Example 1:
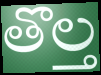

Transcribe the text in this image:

తొల్త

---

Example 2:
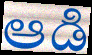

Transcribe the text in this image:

ఆడి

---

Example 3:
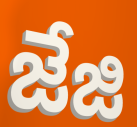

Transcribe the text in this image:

జేజి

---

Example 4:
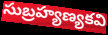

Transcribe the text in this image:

సుబ్రహ్యణ్యకవి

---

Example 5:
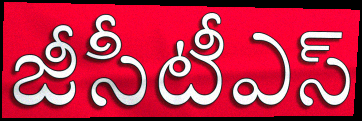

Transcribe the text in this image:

జీసీటీఎస్